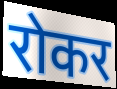
रोकर